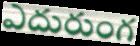
ఎదురుంగ